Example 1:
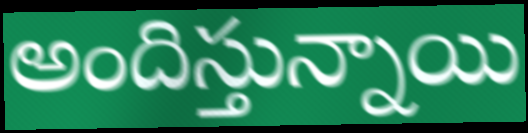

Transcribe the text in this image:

అందిస్తున్నాయి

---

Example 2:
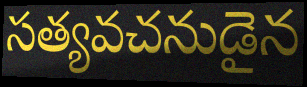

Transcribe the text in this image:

సత్యవచనుడైన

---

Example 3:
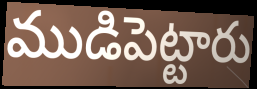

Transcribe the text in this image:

ముడిపెట్టారు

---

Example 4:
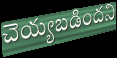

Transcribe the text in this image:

చెయ్యబడిందని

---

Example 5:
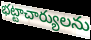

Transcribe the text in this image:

భట్టాచార్యులను